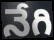
నేగి